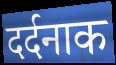
दर्दनाक